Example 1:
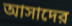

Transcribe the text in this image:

আসাদের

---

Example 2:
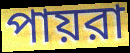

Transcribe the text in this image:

পায়রা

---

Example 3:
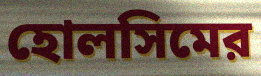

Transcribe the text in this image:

হোলসিমের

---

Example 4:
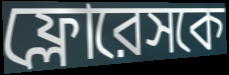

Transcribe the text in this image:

ফ্লোরেসকে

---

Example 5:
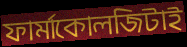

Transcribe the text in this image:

ফার্মাকোলজিটাই